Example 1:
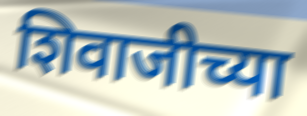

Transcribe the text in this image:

शिवाजीच्या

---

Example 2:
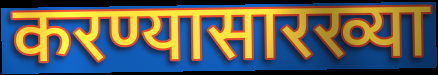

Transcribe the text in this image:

करण्यासारख्या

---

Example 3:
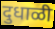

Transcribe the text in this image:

दुधाळी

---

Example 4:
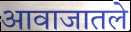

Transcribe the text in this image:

आवाजातले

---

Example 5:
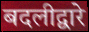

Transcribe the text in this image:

बदलीद्वारे